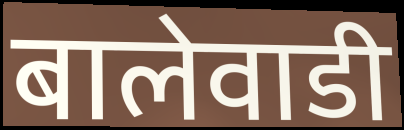
बालेवाडी